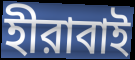
হীরাবাই